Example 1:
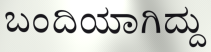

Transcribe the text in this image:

ಬಂದಿಯಾಗಿದ್ದು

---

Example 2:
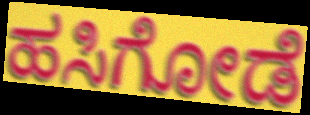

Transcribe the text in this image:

ಹಸಿಗೋಡೆ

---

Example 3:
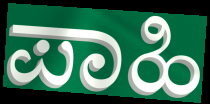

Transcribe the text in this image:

ಪಾಹಿ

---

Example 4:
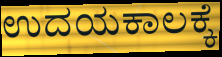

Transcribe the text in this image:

ಉದಯಕಾಲಕ್ಕೆ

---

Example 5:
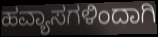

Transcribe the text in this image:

ಹವ್ಯಾಸಗಳಿಂದಾಗಿ